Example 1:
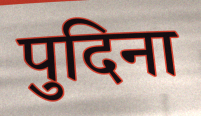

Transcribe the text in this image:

पुदिना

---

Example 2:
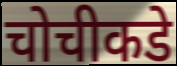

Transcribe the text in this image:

चोचीकडे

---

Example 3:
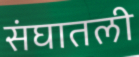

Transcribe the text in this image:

संघातली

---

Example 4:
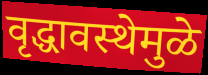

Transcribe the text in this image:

वृद्धावस्थेमुळे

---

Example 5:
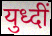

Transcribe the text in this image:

युध्दीं